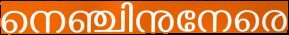
നെഞ്ചിനുനേരെ